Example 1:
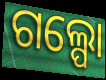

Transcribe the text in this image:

ଗଲ୍ପୋ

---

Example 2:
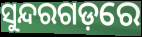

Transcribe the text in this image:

ସୁନ୍ଦରଗଡ଼ରେ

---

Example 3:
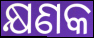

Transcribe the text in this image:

କ୍ଷଣକ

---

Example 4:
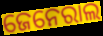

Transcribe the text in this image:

ଜେନେରାଲ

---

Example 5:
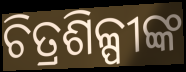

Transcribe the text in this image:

ଚିତ୍ରଶିଳ୍ପୀଙ୍କ